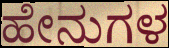
ಹೇನುಗಳ